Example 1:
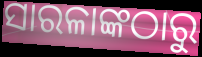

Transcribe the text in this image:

ସାରଳାଙ୍କଠାରୁ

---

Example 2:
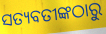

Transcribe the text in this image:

ସତ୍ୟବତୀଙ୍କଠାରୁ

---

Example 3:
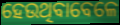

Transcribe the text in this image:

ହେଉଥିବାବେଳେ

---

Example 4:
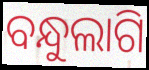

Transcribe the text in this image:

ବନ୍ଧୁଲାଗି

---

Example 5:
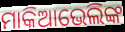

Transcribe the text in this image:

ମାକିଆଭେଲିଙ୍କ